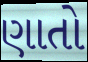
ણાતો